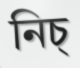
নিচ্